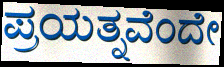
ಪ್ರಯತ್ನವೆಂದೇ